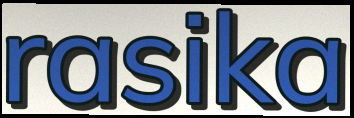
rasika